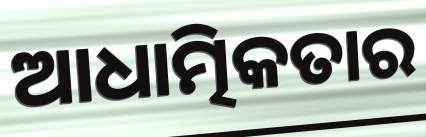
ଆଧାତ୍ମିକତାର